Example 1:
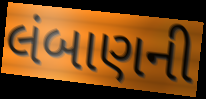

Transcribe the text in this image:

લંબાણની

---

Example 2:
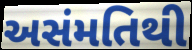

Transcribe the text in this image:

અસંમતિથી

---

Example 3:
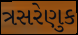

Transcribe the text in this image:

ત્રસરેણુક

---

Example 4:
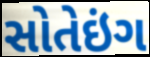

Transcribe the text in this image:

સોતેઇંગ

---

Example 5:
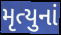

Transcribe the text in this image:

મૃત્યુનાં